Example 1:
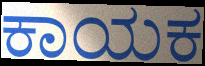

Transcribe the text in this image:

ಕಾಯಕ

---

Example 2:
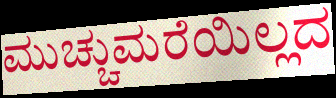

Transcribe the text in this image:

ಮುಚ್ಚುಮರೆಯಿಲ್ಲದ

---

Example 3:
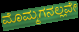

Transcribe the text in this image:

ಮೊಮ್ಮಗನಲ್ಲವೇ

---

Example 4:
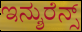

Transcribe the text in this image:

ಇನ್ಶುರೆನ್ಸ್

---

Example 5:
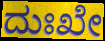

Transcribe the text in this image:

ದುಃಖೇ